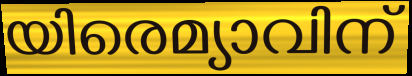
യിരെമ്യാവിന്